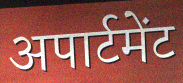
अपार्टमेंट